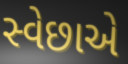
સ્વેછાએ